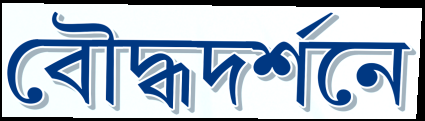
বৌদ্ধদর্শনে